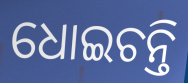
ଧୋଇଚନ୍ତି